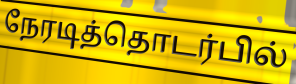
நேரடித்தொடர்பில்